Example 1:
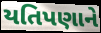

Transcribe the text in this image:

યતિપણાને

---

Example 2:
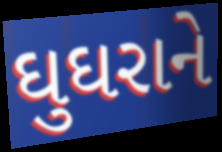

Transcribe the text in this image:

ઘુઘરાને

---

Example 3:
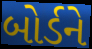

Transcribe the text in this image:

બોર્ડને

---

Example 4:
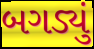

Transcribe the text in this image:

બગડ્યું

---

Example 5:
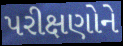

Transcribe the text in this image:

પરીક્ષણોને